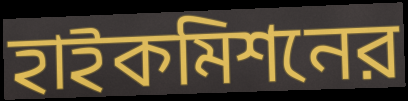
হাইকমিশনের